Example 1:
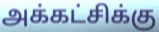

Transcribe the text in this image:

அக்கட்சிக்கு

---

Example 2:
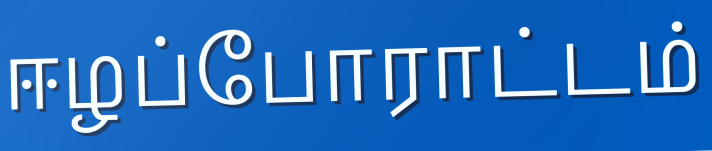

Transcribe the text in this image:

ஈழப்போராட்டம்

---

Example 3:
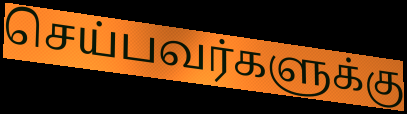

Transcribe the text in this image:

செய்பவர்களுக்கு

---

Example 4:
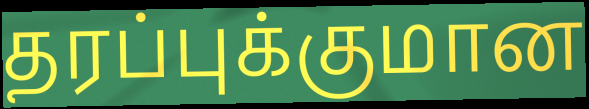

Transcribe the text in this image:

தரப்புக்குமான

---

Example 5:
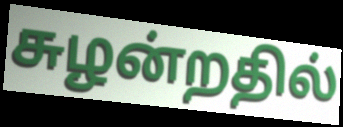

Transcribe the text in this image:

சுழன்றதில்